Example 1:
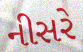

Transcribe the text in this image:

નીસરે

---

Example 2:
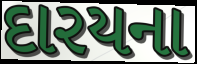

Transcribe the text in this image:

દારયના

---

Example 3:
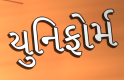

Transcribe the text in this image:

યુનિફોર્મ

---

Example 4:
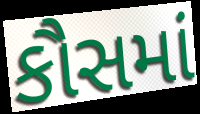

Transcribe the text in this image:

કૌસમાં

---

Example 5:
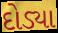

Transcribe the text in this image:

દોડ્યા